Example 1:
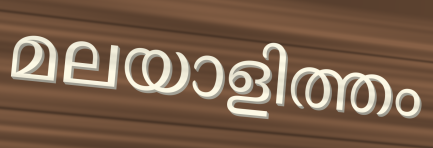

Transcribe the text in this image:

മലയാളിത്തം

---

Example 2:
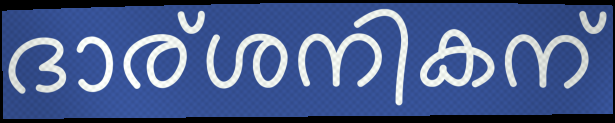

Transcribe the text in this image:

ദാര്ശനികന്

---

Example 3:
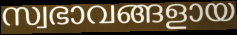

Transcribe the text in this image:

സ്വഭാവങ്ങളായ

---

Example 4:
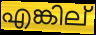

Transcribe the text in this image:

എങ്കില്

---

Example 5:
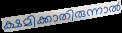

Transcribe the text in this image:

ക്ഷമിക്കാതിരുന്നാൽ